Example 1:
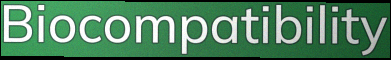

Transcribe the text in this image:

Biocompatibility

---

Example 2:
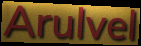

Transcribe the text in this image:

Arulvel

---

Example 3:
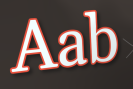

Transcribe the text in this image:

Aab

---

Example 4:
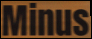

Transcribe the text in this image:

Minus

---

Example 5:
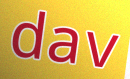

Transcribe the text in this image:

dav